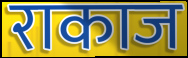
राकाज